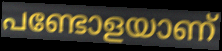
പണ്ടോളയാണ്